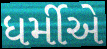
ધર્મીએ